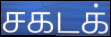
சகடக்